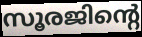
സൂരജിന്റെ